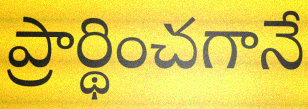
ప్రార్థించగానే